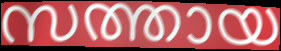
സത്തായ